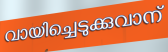
വായിച്ചെടുക്കുവാന്